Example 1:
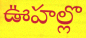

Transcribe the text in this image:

ఊహల్లొ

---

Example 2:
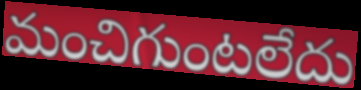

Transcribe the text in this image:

మంచిగుంటలేదు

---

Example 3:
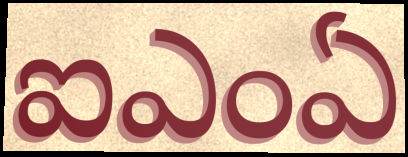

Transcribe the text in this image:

ఐఎంఏ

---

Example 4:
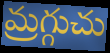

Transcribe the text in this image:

మ్రగ్గుచు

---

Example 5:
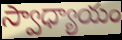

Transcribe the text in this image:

స్వాధ్యాయం